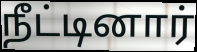
நீட்டினார்